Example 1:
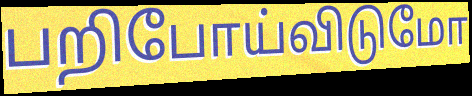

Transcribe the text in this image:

பறிபோய்விடுமோ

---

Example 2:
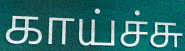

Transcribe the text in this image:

காய்ச்சு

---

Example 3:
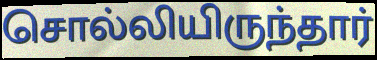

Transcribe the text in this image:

சொல்லியிருந்தார்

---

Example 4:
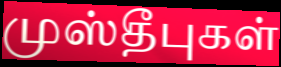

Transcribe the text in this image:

முஸ்தீபுகள்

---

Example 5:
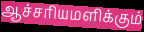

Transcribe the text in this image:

ஆச்சரியமளிக்கும்